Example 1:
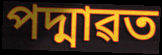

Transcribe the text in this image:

পদ্মাৱত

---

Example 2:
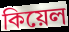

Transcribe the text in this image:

কিয়েল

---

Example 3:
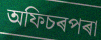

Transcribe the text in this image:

অফিচৰপৰা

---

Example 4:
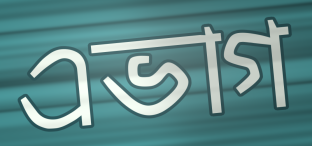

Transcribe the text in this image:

এভাগ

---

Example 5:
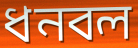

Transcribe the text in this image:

ধনবল